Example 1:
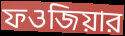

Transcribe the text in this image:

ফওজিয়ার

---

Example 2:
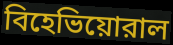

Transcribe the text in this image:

বিহেভিয়োরাল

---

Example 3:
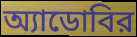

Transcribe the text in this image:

অ্যাডোবির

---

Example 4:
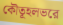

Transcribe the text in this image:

কৌতূহলভরে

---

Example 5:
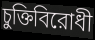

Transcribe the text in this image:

চুক্তিবিরোধী